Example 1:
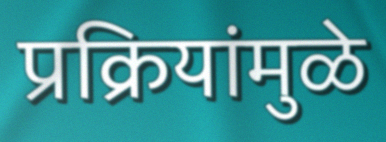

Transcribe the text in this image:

प्रक्रियांमुळे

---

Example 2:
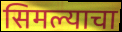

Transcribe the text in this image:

सिमल्याचा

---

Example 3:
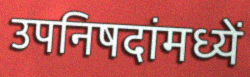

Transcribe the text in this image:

उपनिषदांमध्यें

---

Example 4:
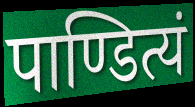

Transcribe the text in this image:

पाण्डित्यं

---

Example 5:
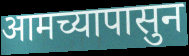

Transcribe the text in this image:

आमच्यापासुन